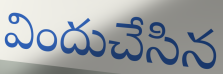
విందుచేసిన